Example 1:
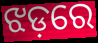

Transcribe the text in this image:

ଝଡ଼ରେ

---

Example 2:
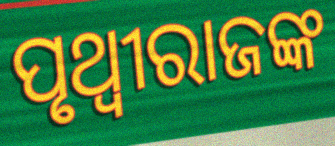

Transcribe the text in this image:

ପୃଥ୍ୱୀରାଜଙ୍କ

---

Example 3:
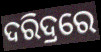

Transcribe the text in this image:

ଦରିଦ୍ରରେ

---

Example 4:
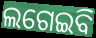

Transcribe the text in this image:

ଲଗେଇବି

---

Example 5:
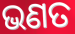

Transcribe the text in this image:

ଭଣତ